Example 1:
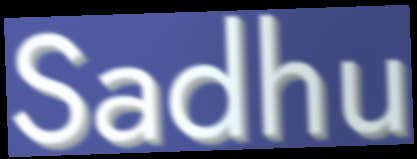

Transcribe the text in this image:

Sadhu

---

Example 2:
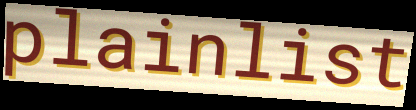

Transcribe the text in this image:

plainlist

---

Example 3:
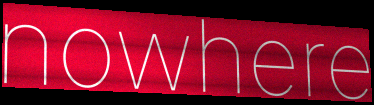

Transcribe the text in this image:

nowhere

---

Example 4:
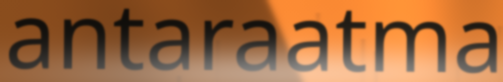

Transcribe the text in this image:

antaraatma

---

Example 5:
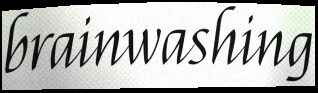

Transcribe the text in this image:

brainwashing